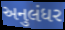
અનુલંધર